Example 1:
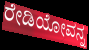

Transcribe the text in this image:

ರೇಡಿಯೋವನ್ನ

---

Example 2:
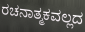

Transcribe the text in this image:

ರಚನಾತ್ಮಕವಲ್ಲದ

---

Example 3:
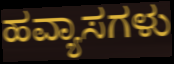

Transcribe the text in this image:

ಹವ್ಯಾಸಗಳು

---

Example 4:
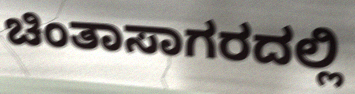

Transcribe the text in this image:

ಚಿಂತಾಸಾಗರದಲ್ಲಿ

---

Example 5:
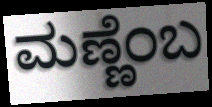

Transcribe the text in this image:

ಮಣ್ಣೆಂಬ